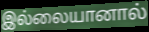
இல்லையானால்